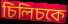
চিলিচকে